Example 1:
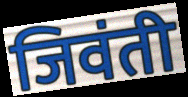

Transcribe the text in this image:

जिवंती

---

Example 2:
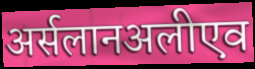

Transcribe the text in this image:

अर्सलानअलीएव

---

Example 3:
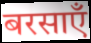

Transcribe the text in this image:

बरसाएँ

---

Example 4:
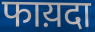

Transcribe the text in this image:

फाय़दा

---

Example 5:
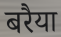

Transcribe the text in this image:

बरैया